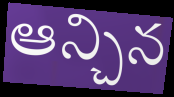
ఆన్చిన